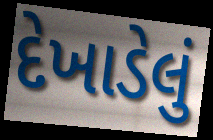
દેખાડેલું